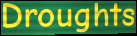
Droughts